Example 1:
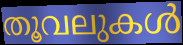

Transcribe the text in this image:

തൂവലുകൾ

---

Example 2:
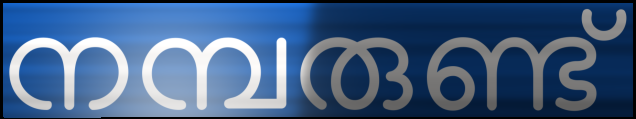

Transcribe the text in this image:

നമ്പരുണ്ട്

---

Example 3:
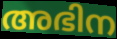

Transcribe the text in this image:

അഭിന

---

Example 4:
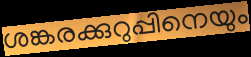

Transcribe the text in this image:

ശങ്കരക്കുറുപ്പിനെയും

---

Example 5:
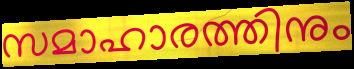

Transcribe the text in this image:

സമാഹാരത്തിനും